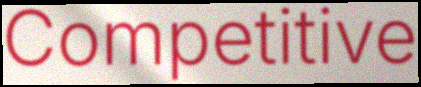
Competitive